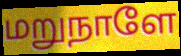
மறுநாளே